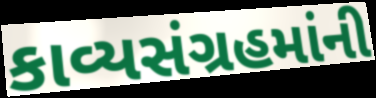
કાવ્યસંગ્રહમાંની